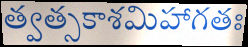
త్వత్సకాశమిహాగతః